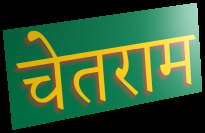
चेतराम